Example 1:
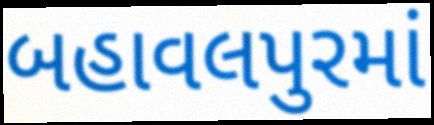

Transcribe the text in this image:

બહાવલપુરમાં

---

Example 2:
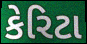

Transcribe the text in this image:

કેરિટા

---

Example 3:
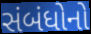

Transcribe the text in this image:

સંબંધોનો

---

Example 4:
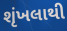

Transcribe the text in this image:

શૃંખલાથી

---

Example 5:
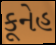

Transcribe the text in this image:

કૂનેહ